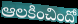
ఆలకించిందో